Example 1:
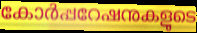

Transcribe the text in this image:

കോർപ്പറേഷനുകളുടെ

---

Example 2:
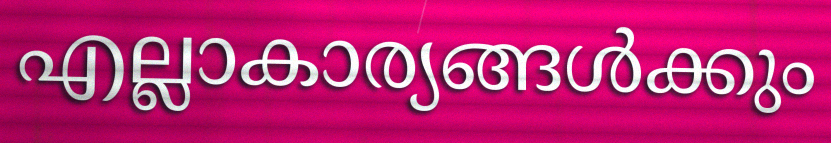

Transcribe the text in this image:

എല്ലാകാര്യങ്ങൾക്കും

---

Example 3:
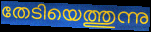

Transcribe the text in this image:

തേടിയെത്തുന്നു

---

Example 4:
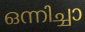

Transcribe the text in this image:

ഒന്നിച്ചാ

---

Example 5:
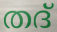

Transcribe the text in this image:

തദ്